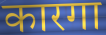
कारगा